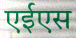
एईएस